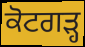
ਕੋਟਗੜ੍ਹ